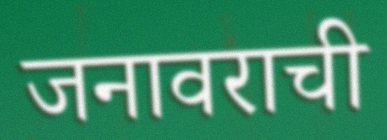
जनावराची